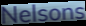
Nelsons